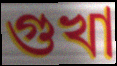
গুখা